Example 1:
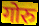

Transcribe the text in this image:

गोरु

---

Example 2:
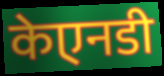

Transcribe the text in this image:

केएनडी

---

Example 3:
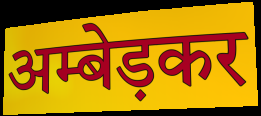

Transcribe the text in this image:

अम्बेड़कर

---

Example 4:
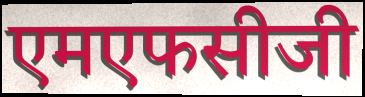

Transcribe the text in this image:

एमएफसीजी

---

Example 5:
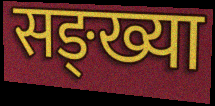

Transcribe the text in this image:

सङ्ख्या